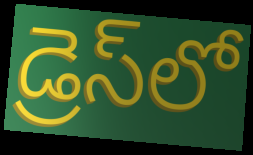
డ్రెస్‌లో